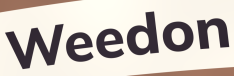
Weedon